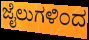
ಜೈಲುಗಳಿಂದ